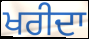
ਖਰੀਦਾ